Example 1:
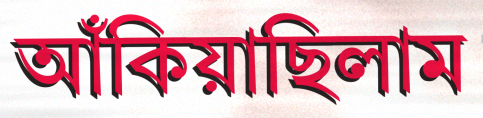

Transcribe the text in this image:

আঁকিয়াছিলাম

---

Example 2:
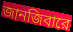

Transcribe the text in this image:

জানজিবারে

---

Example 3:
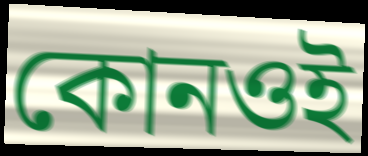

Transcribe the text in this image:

কোনওই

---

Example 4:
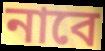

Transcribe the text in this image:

নাবে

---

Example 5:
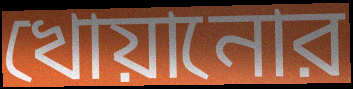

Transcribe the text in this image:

খোয়ানোর